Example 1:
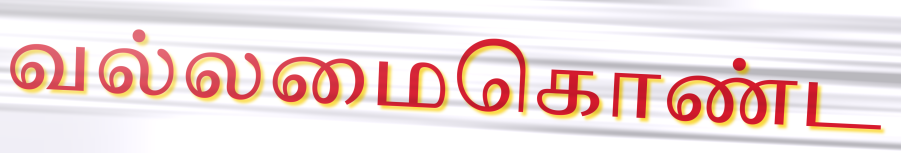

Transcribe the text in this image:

வல்லமைகொண்ட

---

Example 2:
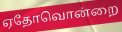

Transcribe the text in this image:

ஏதோவொன்றை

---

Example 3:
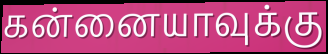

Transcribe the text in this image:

கன்னையாவுக்கு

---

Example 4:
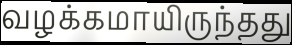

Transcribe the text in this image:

வழக்கமாயிருந்தது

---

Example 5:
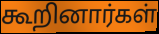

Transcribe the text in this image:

கூறினார்கள்